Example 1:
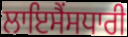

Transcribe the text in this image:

ਲਾਇਸੈਂਸਧਾਰੀ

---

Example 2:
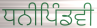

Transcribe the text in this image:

ਧਨੀਪਿੰਡਵੀ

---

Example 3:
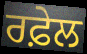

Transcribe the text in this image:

ਰਫ਼ੇਲ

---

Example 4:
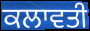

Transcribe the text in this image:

ਕਲਾਵਤੀ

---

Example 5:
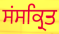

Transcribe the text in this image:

ਸਂਸਕ੍ਰਿਤ